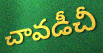
చావడీచీ